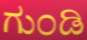
ಗುಂಡಿ